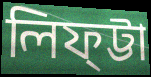
লিফ্ট্টা